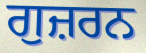
ਗੁਜ਼ਰਨ